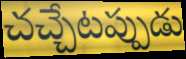
చచ్చేటప్పుడు